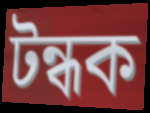
টন্ধক